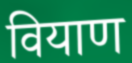
वियाण